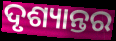
ଦୃଶ୍ୟାନ୍ତର